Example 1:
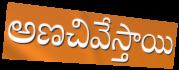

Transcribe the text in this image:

అణచివేస్తాయి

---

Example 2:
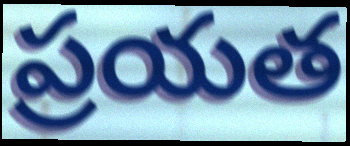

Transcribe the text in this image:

ప్రయత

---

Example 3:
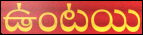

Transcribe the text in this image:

ఉంటయి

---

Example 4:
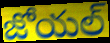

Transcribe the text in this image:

జోయల్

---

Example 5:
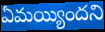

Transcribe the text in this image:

ఏమయ్యిందని